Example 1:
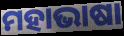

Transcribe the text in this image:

ମହାଭାଷା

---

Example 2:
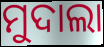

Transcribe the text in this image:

ମୁଦାଲା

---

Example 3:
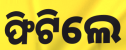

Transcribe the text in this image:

ଫିଟିଲେ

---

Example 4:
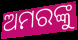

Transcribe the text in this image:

ଅମରଙ୍କୁ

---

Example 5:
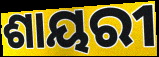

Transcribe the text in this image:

ଶାୟରୀ